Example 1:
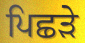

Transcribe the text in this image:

ਪਿਛੜੇ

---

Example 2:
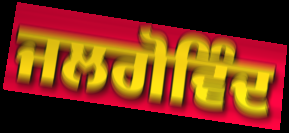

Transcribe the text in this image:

ਜਲਗੋਵਿੰਦ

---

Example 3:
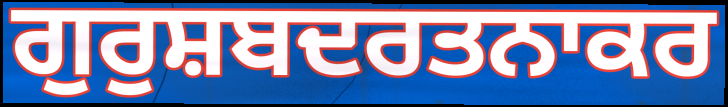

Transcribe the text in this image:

ਗੁਰੁਸ਼ਬਦਰਤਨਾਕਰ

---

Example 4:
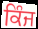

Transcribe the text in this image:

ਕਿੰਜ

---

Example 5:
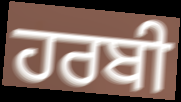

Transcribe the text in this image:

ਹਰਬੀ